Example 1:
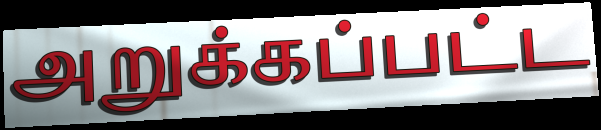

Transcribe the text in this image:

அறுக்கப்பட்ட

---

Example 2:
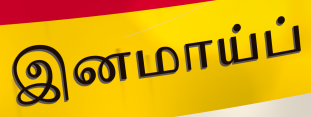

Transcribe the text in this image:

இனமாய்ப்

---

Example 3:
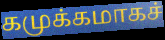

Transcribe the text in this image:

கமுக்கமாகச்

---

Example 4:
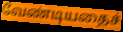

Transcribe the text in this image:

வேண்டியதைச்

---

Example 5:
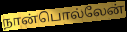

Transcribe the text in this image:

நான்பொல்லேன்